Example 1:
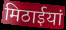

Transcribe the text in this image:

मिठाईयां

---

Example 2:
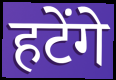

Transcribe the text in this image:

हटेंगे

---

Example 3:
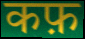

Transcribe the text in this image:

कफ़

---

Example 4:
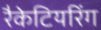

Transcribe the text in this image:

रैकेटियरिंग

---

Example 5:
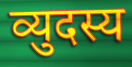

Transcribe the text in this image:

व्युदस्य